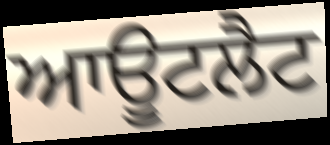
ਆਊਟਲੈਟ